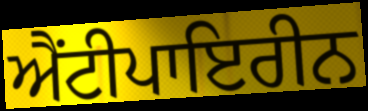
ਐਂਟੀਪਾਇਰੀਨ